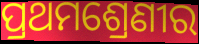
ପ୍ରଥମଶ୍ରେଣୀର